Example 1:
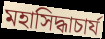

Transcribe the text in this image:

মহাসিদ্ধাচার্য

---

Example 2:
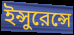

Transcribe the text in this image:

ইন্সুরেন্সে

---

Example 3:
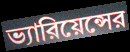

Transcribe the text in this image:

ভ্যারিয়েন্সের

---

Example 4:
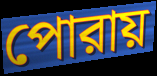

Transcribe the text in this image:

পোরায়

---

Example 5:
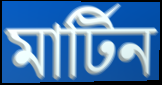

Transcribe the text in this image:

মার্টিন